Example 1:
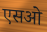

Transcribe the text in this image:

एसओ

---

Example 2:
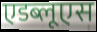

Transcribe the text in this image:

एडब्लूएस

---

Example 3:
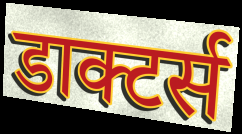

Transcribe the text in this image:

डाक्टर्स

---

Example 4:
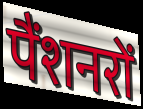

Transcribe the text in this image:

पैंशनरों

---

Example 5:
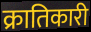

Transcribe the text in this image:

क्रातिकारी